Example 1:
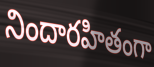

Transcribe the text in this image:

నిందారహితంగా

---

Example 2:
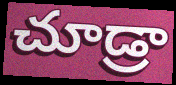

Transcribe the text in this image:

చూడ్రా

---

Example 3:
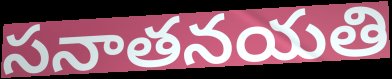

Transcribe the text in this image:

సనాతనయతి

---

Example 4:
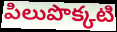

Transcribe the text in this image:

పిలుపొక్కటి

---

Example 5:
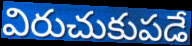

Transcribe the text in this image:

విరుచుకుపడే